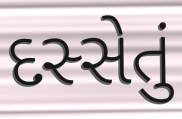
દસ્સેતું